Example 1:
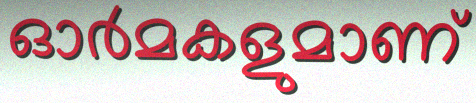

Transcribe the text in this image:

ഓർമകളുമാണ്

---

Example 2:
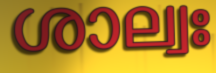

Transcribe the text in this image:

ശാല്വഃ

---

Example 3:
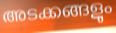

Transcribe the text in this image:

അടക്കങ്ങളും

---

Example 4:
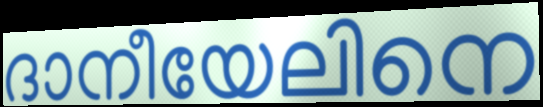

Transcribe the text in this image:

ദാനീയേലിനെ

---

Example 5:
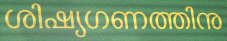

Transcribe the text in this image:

ശിഷ്യഗണത്തിനു